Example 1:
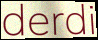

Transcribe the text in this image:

derdi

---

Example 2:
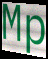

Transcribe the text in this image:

Mp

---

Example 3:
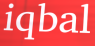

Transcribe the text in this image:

iqbal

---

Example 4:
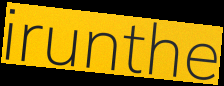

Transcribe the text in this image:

irunthe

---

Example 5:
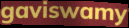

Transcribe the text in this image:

gaviswamy